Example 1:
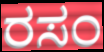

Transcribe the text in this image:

ರಸಂ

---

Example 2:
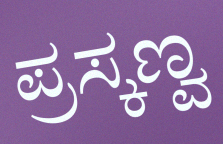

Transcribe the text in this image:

ಪ್ರಸ್ಕಣ್ವ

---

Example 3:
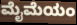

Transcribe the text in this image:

ಮೈಮೆಯಂ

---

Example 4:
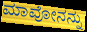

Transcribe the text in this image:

ಮಾವೋನನ್ನು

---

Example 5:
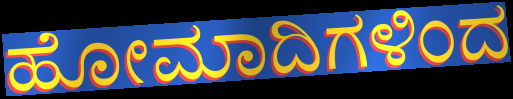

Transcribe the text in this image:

ಹೋಮಾದಿಗಳಿಂದ